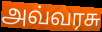
அவ்வரசு